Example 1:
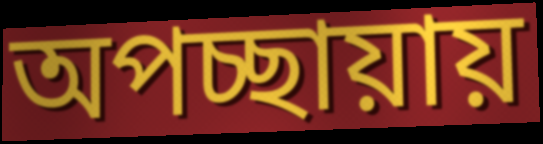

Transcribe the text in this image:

অপচ্ছায়ায়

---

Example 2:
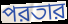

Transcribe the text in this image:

পরতার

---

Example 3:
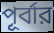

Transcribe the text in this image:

পূর্বার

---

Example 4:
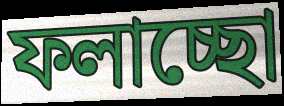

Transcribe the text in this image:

ফলাচ্ছো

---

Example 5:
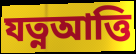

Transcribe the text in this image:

যত্নআত্তি